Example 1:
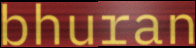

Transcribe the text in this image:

bhuran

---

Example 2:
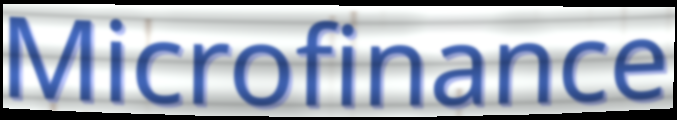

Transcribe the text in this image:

Microfinance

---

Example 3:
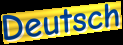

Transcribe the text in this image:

Deutsch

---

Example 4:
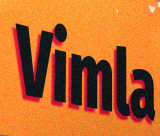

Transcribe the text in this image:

Vimla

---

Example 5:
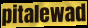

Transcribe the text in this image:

pitalewad